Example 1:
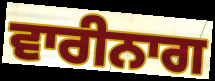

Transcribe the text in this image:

ਵਾਰੀਨਾਗ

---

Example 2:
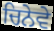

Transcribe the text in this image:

ਚਿਨੇਵੇ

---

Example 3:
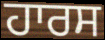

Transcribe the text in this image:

ਹਾਰਸ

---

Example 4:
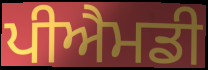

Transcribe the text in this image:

ਪੀਐਮਡੀ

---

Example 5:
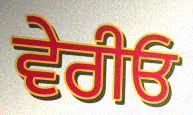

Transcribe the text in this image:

ਵੇਰੀਓ